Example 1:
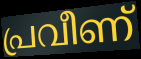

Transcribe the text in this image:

പ്രവീണ്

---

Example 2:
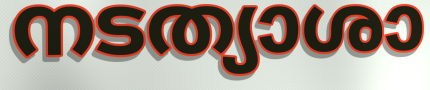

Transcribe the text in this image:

നടത്യാശാ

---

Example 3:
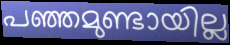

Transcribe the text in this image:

പഞ്ഞമുണ്ടായില്ല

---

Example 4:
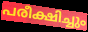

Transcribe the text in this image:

പരീക്ഷിച്ചും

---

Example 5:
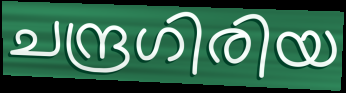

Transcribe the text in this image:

ചന്ദ്രഗിരിയ